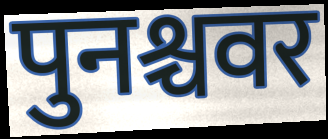
पुनश्चवर